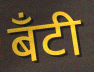
बँटी